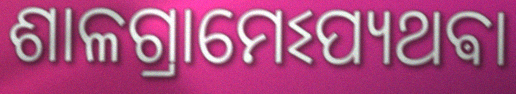
ଶାଳଗ୍ରାମେଽପ୍ଯଥଵା